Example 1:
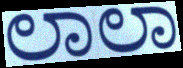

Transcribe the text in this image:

ಲಾಲಾ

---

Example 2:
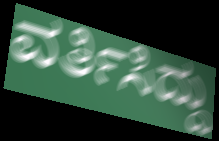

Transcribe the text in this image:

ವರ್ತಿಸಿದ್ದು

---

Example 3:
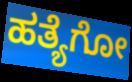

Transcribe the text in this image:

ಹತ್ಯೆಗೋ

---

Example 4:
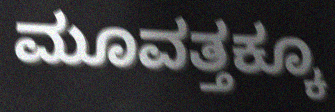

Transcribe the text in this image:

ಮೂವತ್ತಕ್ಕೂ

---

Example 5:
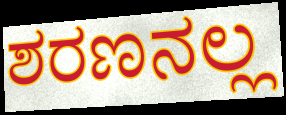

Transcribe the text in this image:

ಶರಣನಲ್ಲ